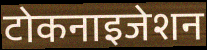
टोकनाइजेशन